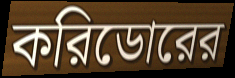
করিডোরের